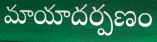
మాయాదర్పణం